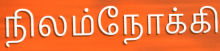
நிலம்நோக்கி